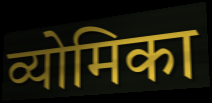
व्योमिका